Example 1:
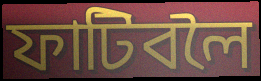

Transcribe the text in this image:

ফাটিবলৈ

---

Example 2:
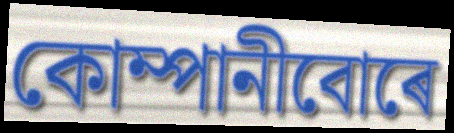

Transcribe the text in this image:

কোম্পানীবোৰে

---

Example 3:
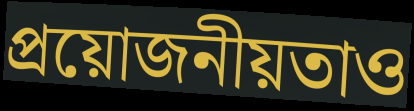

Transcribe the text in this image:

প্ৰয়োজনীয়তাও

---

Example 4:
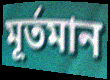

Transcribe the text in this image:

মূৰ্তমান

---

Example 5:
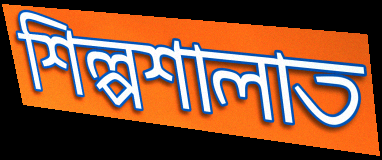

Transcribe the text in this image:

শিল্পশালাত